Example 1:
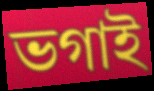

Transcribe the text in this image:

ভগাই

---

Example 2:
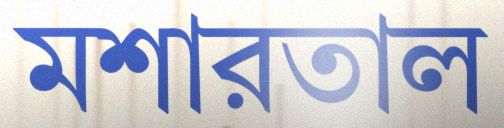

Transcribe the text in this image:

মশারতাল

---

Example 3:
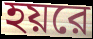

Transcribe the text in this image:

হয়রে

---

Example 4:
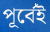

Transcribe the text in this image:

পূর্বেই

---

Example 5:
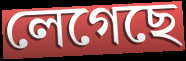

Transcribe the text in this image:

লেগেছে